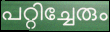
പറ്റിച്ചേരും